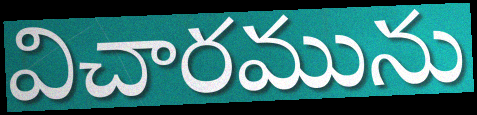
విచారమును